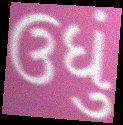
ઉધું